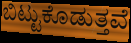
ಬಿಟ್ಟುಕೊಡುತ್ತವೆ